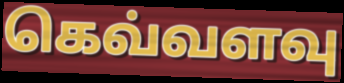
கெவ்வளவு